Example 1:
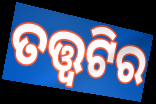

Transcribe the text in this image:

ତତ୍ତ୍ଵଟିର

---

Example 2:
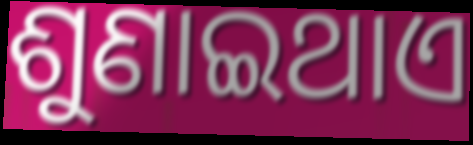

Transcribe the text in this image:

ଶୁଣାଇଥାଏ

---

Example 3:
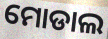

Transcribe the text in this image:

ମୋଡାଲ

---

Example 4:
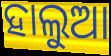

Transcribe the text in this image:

ହାଲୁଆ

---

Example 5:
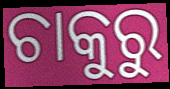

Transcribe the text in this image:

ଚାକୁରୁ